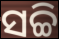
ସଚ୍ଚି